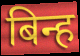
बिन्ह